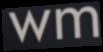
wm